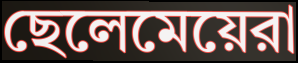
ছেলেমেয়েরা